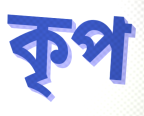
কৃপ